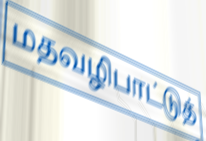
மதவழிபாட்டுத்